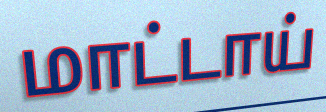
மாட்டாய்